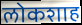
लोकशाह